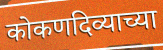
कोकणदिव्याच्या